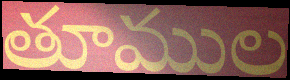
తూముల